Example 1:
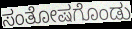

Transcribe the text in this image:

ಸಂತೋಷಗೊಂಡು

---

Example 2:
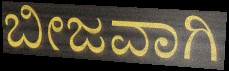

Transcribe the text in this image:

ಬೀಜವಾಗಿ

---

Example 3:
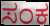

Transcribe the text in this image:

ಸಂಕ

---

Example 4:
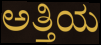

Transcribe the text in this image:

ಅತ್ತಿಯ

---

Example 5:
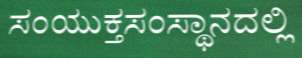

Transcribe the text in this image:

ಸಂಯುಕ್ತಸಂಸ್ಥಾನದಲ್ಲಿ